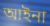
আইনা